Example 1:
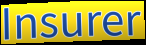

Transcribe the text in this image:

Insurer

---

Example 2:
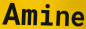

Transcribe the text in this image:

Amine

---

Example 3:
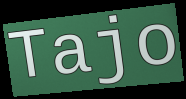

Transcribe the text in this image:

Tajo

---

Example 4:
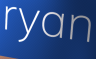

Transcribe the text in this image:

ryan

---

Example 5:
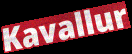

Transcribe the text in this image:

Kavallur